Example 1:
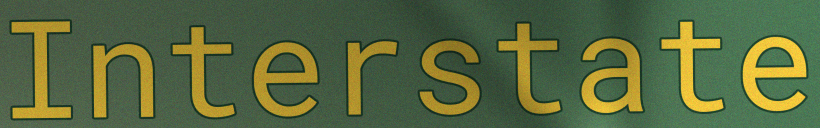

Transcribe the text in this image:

Interstate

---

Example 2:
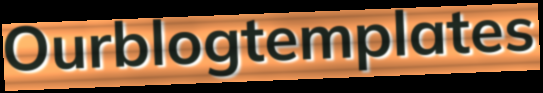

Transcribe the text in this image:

Ourblogtemplates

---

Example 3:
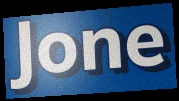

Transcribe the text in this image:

Jone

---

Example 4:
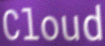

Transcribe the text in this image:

Cloud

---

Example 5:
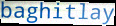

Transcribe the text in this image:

baghitlay